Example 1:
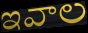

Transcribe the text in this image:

ఇవాల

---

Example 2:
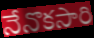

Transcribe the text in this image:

నేనొకసారి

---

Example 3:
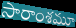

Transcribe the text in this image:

సారాంశమూ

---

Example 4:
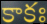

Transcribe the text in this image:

కాకః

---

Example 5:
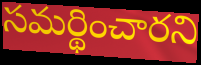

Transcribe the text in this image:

సమర్థించారని